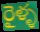
రైళ్ళ